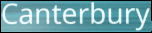
Canterbury